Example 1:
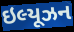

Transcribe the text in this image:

ઇલ્યૂઝન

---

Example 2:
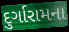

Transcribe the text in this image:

દુર્ગારામના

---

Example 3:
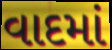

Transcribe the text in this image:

વાદમાં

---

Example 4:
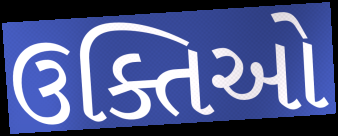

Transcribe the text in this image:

ઉક્તિઓ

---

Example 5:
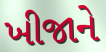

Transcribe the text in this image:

ખીજાને